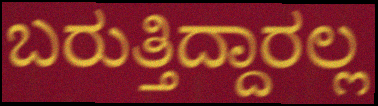
ಬರುತ್ತಿದ್ದಾರಲ್ಲ